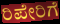
ರಿಪೇರಿಗೆ